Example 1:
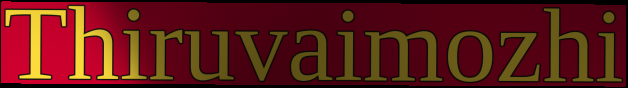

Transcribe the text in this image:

Thiruvaimozhi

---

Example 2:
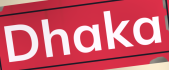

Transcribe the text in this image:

Dhaka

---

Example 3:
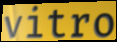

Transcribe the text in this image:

vitro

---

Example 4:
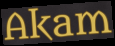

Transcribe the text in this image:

Akam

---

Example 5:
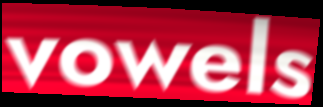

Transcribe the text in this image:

vowels